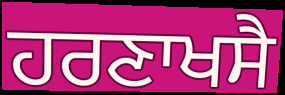
ਹਰਣਾਖਸੈ